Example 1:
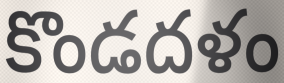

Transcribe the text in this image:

కొండదళం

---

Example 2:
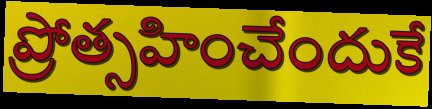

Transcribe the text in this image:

ప్రోత్సహించేందుకే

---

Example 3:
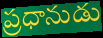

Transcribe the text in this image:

ప్రధానుడు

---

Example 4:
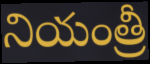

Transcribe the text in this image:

నియంత్రీ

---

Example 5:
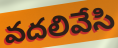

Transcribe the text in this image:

వదలివేసి